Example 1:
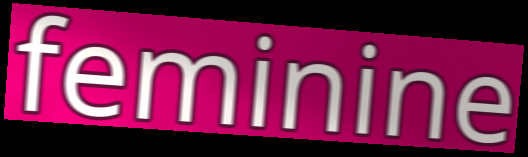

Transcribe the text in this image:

feminine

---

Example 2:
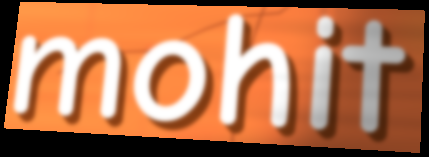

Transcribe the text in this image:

mohit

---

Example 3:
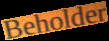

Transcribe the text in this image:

Beholder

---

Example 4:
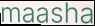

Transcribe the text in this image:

maasha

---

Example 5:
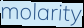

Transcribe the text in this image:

molarity